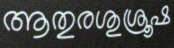
ആതുരശുശ്രൂഷ